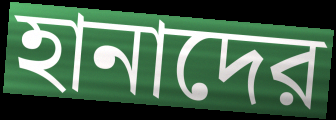
হানাদের